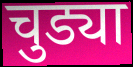
चुड्या